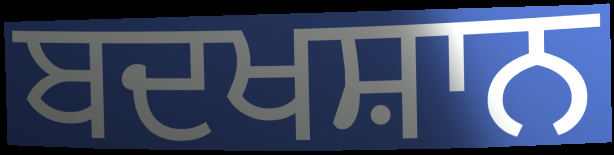
ਬਦਖਸ਼ਾਨ